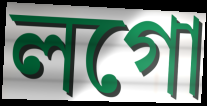
লগো